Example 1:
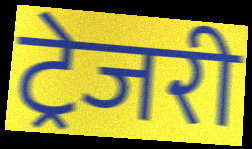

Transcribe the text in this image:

ट्रेजरी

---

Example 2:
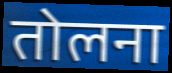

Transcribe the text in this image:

तोलना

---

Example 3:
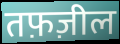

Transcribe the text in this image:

तफ़ज़ील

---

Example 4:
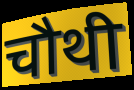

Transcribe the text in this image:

चौथी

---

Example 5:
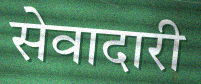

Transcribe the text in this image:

सेवादारी